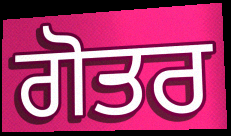
ਗੋਤਰ